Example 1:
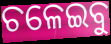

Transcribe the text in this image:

ଚଳେଇବୁ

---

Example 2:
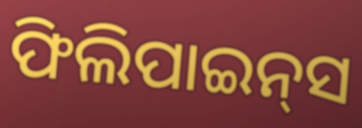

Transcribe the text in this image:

ଫିଲିପାଇନ୍‍ସ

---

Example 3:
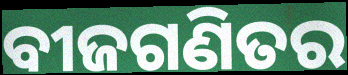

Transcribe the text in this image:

ବୀଜଗଣିତର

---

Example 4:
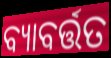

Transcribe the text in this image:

ବ୍ୟାବର୍ତ୍ତତ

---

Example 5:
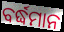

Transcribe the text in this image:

ବର୍ଦ୍ଧମାନ